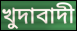
খুদাবাদী